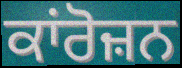
ਕਾਂਰੋਜ਼ਨ